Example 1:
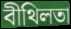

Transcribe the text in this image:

বীথিলতা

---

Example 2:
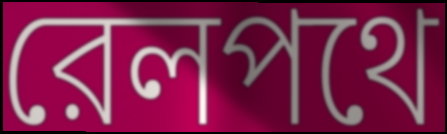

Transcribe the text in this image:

রেলপথে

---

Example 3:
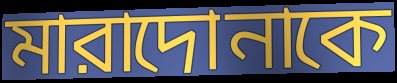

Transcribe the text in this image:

মারাদোনাকে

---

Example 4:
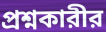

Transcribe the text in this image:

প্রশ্নকারীর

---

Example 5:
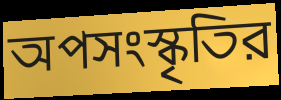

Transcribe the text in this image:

অপসংস্কৃতির